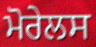
ਮੋਰੇਲਸ